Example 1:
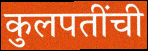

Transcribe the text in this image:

कुलपतींची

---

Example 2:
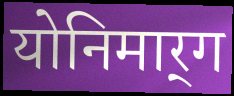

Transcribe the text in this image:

योनिमार्ग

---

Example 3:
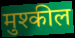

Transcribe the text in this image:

मुश्कील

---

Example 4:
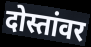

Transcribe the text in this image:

दोस्तांवर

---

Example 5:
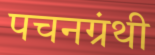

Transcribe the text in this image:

पचनग्रंथी